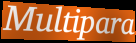
Multipara